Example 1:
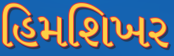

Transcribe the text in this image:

હિમશિખર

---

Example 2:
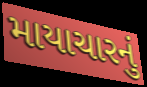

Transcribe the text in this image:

માયાચારનું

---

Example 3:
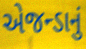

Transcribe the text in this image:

એજન્ડાનું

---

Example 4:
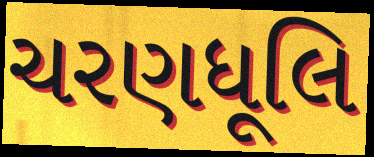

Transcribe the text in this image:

ચરણધૂલિ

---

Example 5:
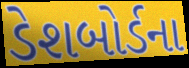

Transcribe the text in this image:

ડેશબોર્ડના